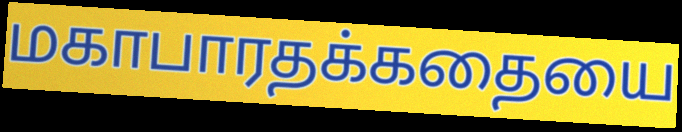
மகாபாரதக்கதையை